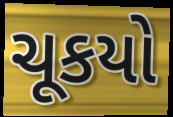
ચૂકયો